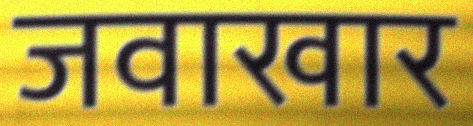
जवाखार